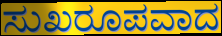
ಸುಖರೂಪವಾದ